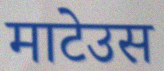
माटेउस